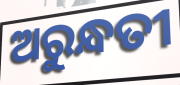
ଅରୁନ୍ଧତୀ